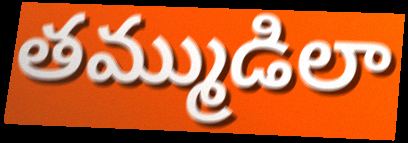
తమ్ముడిలా